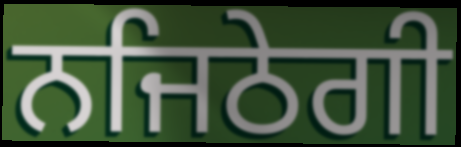
ਨਜਿਠੇਗੀ